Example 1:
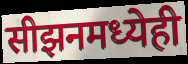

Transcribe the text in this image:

सीझनमध्येही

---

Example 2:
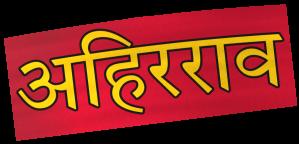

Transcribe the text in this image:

अहिरराव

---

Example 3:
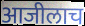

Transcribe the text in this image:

आजीलाच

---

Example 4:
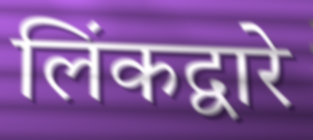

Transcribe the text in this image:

लिंकद्वारे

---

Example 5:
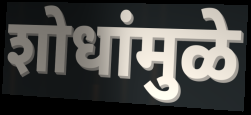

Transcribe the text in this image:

शोधांमुळे